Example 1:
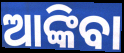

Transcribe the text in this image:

ଆଙ୍କିବା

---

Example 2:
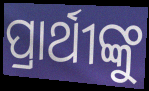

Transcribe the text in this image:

ପ୍ରାର୍ଥୀଙ୍କୁ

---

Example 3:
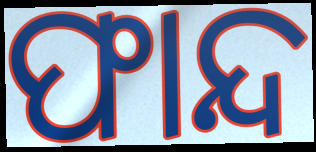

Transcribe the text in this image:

ଫାନ୍ଦ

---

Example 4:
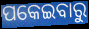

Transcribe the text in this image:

ପକେଇବାରୁ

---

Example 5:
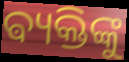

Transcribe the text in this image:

ଵ୍ୟକ୍ତିଙ୍କୁ